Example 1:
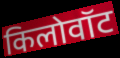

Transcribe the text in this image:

किलोवॉट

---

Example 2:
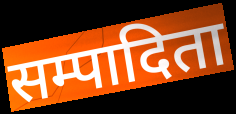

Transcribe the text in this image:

सम्पादिता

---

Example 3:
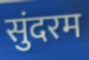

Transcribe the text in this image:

सुंदरम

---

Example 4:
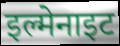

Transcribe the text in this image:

इल्मेनाइट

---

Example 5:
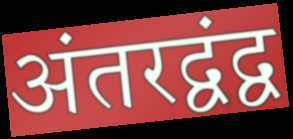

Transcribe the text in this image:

अंतरद्वंद्व